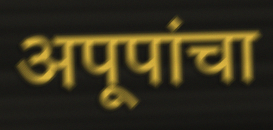
अपूपांचा